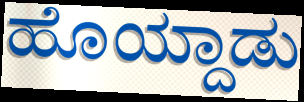
ಹೊಯ್ದಾಡು